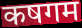
कषगम